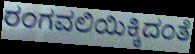
ರಂಗವಲಿಯಿಕ್ಕಿದಂತೆ